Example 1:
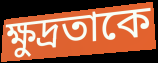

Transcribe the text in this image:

ক্ষুদ্রতাকে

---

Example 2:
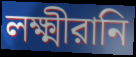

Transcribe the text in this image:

লক্ষ্মীরানি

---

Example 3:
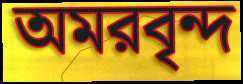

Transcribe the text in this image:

অমরবৃন্দ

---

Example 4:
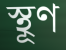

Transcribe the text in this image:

স্থূণ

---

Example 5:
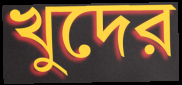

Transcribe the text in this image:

খুদের